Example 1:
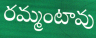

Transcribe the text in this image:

రమ్మంటావు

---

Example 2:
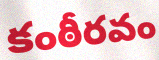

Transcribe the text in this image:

కంఠీరవం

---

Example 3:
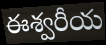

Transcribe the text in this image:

ఈశ్వరీయ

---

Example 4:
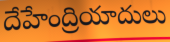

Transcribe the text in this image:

దేహేంద్రియాదులు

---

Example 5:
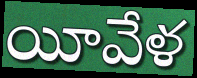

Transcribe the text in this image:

యీవేళ